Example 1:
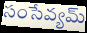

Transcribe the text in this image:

సంసేవ్యమ్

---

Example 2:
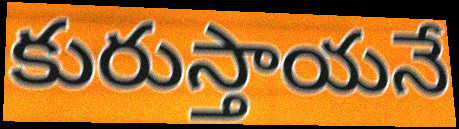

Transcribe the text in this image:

కురుస్తాయనే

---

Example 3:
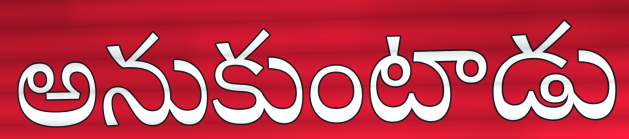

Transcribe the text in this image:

అనుకుంటాడు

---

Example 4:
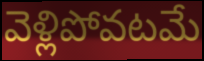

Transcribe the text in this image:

వెళ్లిపోవటమే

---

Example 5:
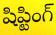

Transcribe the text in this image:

షిప్టింగ్